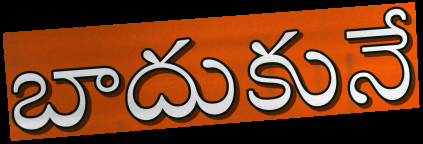
బాదుకునే